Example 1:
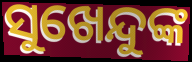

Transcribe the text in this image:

ସୁଖେନ୍ଦୁଙ୍କ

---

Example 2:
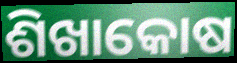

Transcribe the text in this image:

ଶିଖାକୋଷ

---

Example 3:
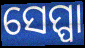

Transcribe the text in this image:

ସେପ୍ପା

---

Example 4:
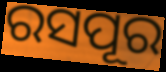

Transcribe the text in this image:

ରସପୂର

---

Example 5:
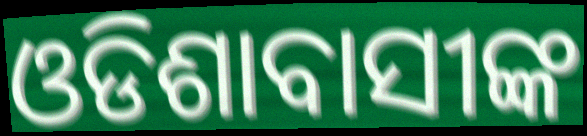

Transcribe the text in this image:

ଓଡିଶାବାସୀଙ୍କ